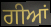
ਗੀਆਂ